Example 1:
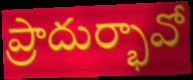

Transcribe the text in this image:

ప్రాదుర్భావో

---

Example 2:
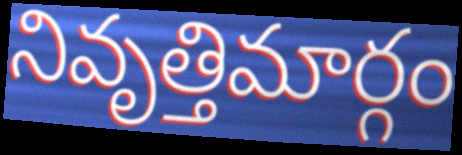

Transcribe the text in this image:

నివృత్తిమార్గం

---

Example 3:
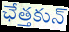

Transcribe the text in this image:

ఛేత్తకున్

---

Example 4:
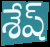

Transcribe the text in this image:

శేష్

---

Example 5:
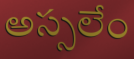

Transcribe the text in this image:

అస్సలేం